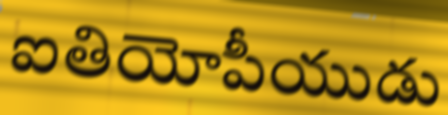
ఐతియోపీయుడు